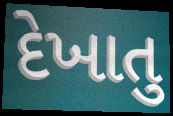
દેખાતુ